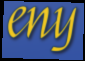
eny